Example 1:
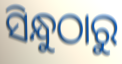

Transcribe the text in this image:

ସିନ୍ଧୁଠାରୁ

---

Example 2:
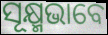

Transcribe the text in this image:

ସୂକ୍ଷ୍ମଭାବେ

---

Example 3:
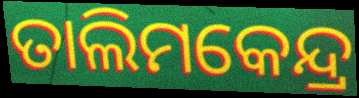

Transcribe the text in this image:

ତାଲିମକେନ୍ଦ୍ର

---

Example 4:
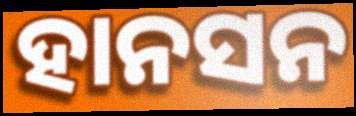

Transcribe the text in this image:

ହାନସନ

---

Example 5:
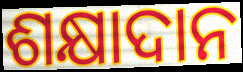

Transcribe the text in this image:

ଶକ୍ଷାଦାନ